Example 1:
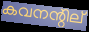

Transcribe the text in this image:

കവനന്റില്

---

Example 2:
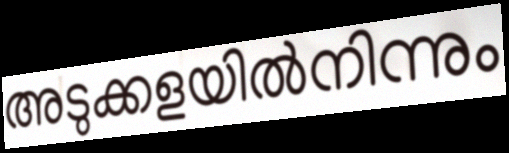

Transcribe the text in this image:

അടുക്കളയിൽനിന്നും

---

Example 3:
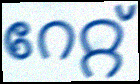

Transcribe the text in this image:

റേറ്റ്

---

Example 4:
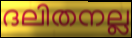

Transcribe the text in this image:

ദലിതനല്ല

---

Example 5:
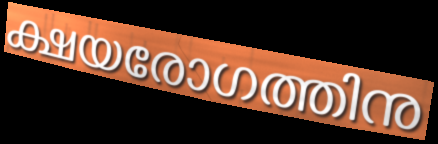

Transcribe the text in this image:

ക്ഷയരോഗത്തിനു